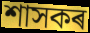
শাসকৰ